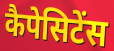
कैपेसिटेंस